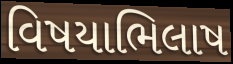
વિષયાભિલાષ